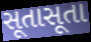
સૂતાસૂતા